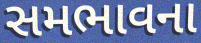
સમભાવના